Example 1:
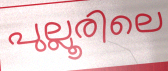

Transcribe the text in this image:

പുല്ലൂരിലെ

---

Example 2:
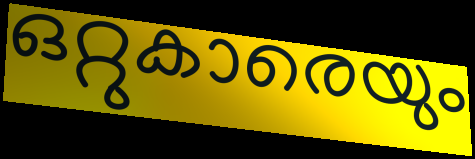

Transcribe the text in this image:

ഒറ്റുകാരെയും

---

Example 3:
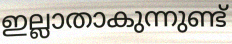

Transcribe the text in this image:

ഇല്ലാതാകുന്നുണ്ട്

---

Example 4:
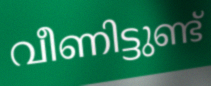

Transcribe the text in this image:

വീണിട്ടുണ്ട്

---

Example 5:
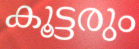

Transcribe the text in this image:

കൂട്ടരും